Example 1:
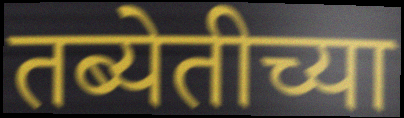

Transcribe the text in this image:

तब्येतीच्या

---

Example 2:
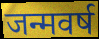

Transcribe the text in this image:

जन्मवर्ष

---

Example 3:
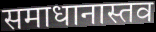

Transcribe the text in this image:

समाधानास्तव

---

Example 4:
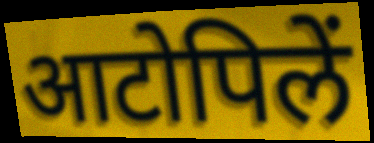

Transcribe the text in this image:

आटोपिलें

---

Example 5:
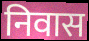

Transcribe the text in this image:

निवास